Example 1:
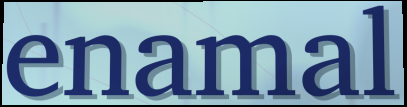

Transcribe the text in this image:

enamal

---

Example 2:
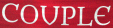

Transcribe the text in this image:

COUPLE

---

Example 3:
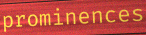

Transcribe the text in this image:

prominences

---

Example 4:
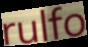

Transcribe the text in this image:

rulfo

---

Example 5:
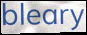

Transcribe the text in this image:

bleary